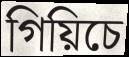
গিয়িচে